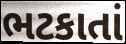
ભટકાતાં